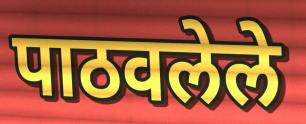
पाठवलेले